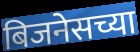
बिजनेसच्या